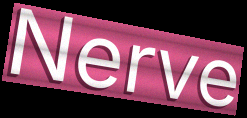
Nerve